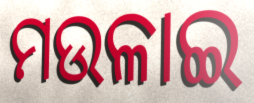
ମଉଳାଇ